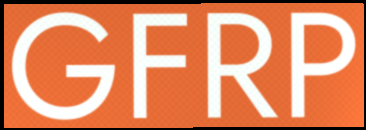
GFRP